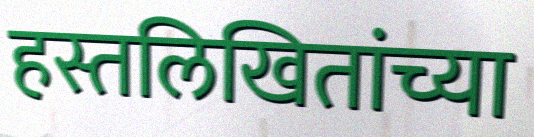
हस्तलिखितांच्या